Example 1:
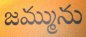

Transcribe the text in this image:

జమ్మును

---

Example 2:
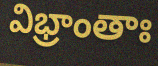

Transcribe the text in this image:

విభ్రాంతాః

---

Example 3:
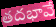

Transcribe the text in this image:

తదభావే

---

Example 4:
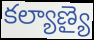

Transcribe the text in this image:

కల్యాణ్యై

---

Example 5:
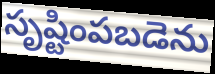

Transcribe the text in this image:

సృష్టింపబడెను